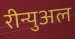
रीन्युअल